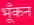
भूँकन